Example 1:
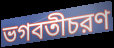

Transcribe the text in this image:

ভগবতীচরণ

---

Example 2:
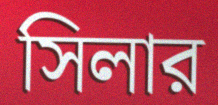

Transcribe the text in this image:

সিলার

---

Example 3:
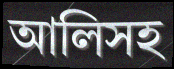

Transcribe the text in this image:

আলিসহ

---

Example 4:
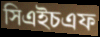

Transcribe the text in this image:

সিএইচএফ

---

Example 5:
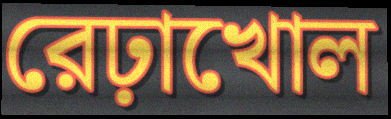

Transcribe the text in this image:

রেঢ়াখোল